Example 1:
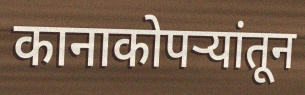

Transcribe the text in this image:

कानाकोपर्‍यांतून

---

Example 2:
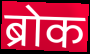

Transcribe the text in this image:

ब्रोक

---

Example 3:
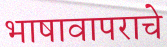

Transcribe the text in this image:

भाषावापराचे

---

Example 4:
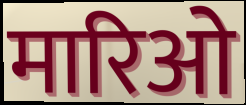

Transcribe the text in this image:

मारिओ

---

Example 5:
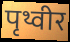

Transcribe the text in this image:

पृथ्वीर